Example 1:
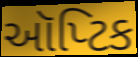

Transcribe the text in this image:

ઑપ્ટિક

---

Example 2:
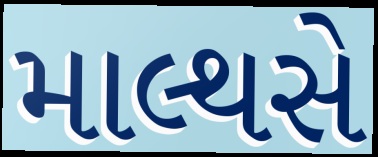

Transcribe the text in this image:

માલ્થસે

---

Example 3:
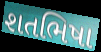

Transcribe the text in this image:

શતભિષા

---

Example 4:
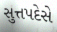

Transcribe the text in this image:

સુત્તપદેસે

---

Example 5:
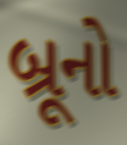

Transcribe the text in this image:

બ્રૂનો